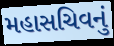
મહાસચિવનું